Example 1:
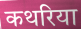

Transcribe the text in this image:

कथरिया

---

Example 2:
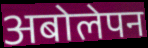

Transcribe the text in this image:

अबोलेपन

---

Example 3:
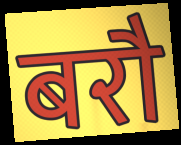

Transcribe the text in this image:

बरौ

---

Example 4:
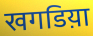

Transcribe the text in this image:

खगडिय़ा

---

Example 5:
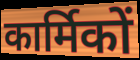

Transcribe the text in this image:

कार्मिकों